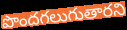
పొందగలుగుతారని